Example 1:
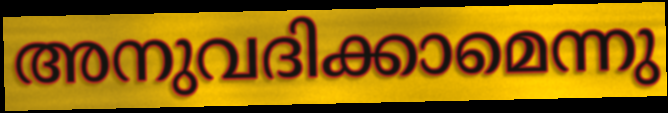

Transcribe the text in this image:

അനുവദിക്കാമെന്നു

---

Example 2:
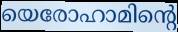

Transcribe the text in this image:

യെരോഹാമിന്റെ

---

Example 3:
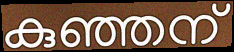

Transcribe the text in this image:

കുഞ്ഞന്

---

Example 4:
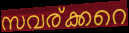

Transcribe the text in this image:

സവര്ക്കറെ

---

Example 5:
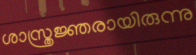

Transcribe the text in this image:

ശാസ്ത്രജ്ഞരായിരുന്നു